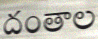
దంతాల